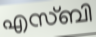
എസ്ബി